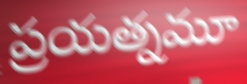
ప్రయత్నమూ